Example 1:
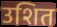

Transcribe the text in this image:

उशित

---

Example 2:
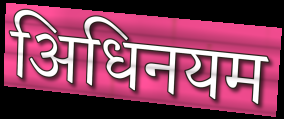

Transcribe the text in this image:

अिधिनयम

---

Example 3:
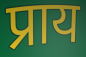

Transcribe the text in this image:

प्राय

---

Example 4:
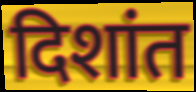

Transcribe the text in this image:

दिशांत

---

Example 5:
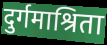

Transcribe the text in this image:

दुर्गमाश्रिता